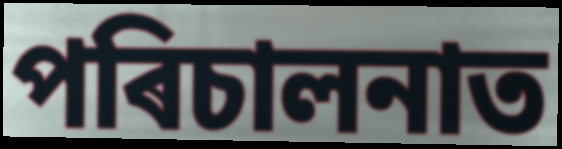
পৰিচালনাত